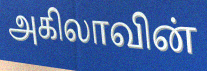
அகிலாவின்